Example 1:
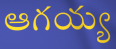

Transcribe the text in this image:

ఆగయ్య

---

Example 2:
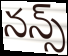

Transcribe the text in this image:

నన్స్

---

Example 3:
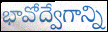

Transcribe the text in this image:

భావోద్వేగాన్ని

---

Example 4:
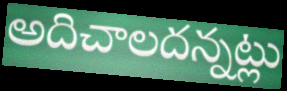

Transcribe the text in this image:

అదిచాలదన్నట్లు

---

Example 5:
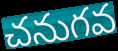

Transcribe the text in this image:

చనుగవ